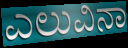
ಎಲುವಿನಾ